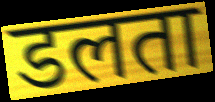
डलता